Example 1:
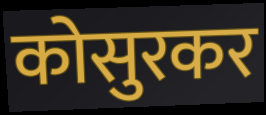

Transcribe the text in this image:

कोसुरकर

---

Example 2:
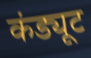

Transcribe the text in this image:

कंड्यूट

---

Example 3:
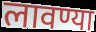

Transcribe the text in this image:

लावण्या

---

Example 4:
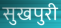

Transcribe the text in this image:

सुखपुरी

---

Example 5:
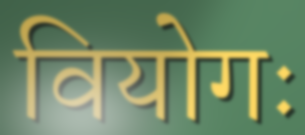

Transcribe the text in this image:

वियोगः